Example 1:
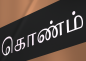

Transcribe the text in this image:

கொண்ம்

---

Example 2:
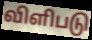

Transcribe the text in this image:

விளிபடு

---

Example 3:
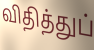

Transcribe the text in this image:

விதித்துப்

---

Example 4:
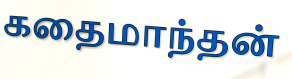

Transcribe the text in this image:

கதைமாந்தன்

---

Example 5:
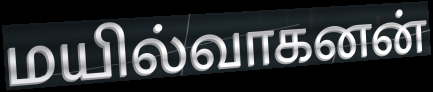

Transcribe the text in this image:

மயில்வாகனன்